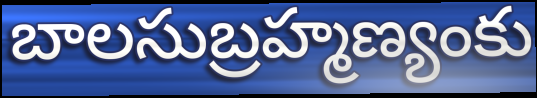
బాలసుబ్రహ్మణ్యంకు